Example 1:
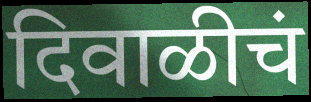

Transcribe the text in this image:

दिवाळीचं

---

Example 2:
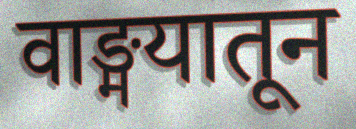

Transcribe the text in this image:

वाङ्मयातून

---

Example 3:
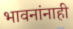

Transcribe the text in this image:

भावनांनाही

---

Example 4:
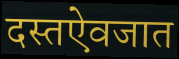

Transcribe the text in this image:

दस्तऐवजात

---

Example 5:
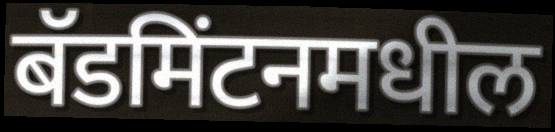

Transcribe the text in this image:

बॅडमिंटनमधील